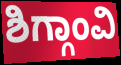
ಶಿಗ್ಗಾಂವಿ